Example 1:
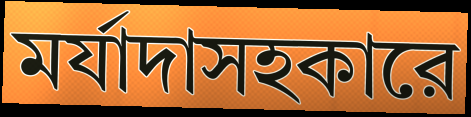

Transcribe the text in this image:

মর্যাদাসহকারে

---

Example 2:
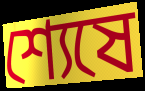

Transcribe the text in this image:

শ্যেষে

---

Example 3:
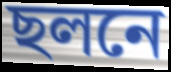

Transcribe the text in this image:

ছলনে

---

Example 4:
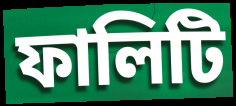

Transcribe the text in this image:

ফালিটি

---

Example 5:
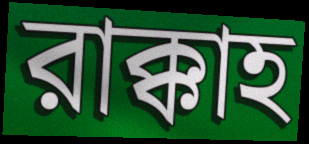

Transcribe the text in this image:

রাক্কাহ